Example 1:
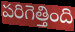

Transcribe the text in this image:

పరిగెత్తింది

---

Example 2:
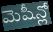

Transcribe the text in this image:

మెషీన్లో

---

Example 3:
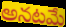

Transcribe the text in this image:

అనటమే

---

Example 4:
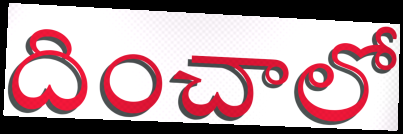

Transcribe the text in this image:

దించాలో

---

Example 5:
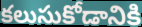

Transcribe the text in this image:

కలుసుకోడానికి